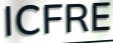
ICFRE